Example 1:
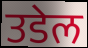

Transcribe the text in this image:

उडेल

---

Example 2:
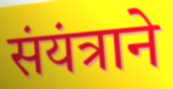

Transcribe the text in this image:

संयंत्राने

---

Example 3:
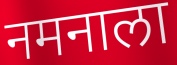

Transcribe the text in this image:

नमनाला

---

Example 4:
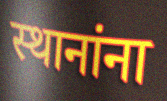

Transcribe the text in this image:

स्थानांना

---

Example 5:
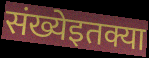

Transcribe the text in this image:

संख्येइतक्या